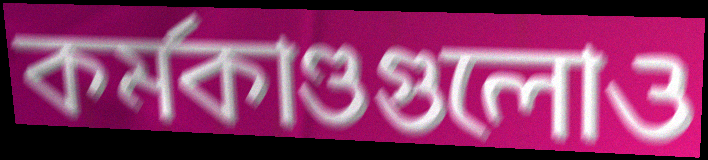
কর্মকাণ্ডগুলোও